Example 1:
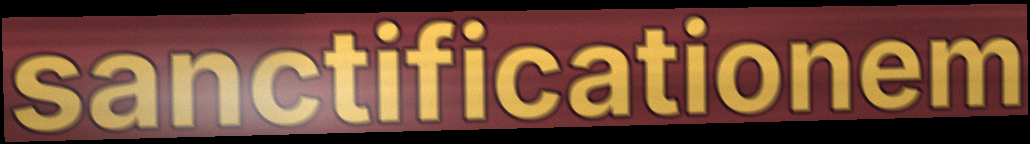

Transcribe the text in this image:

sanctificationem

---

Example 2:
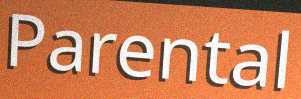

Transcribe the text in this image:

Parental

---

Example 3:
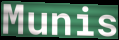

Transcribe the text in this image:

Munis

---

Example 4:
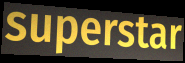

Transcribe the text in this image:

superstar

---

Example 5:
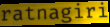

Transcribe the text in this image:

ratnagiri